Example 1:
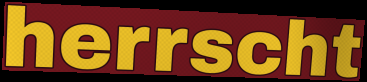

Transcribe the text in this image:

herrscht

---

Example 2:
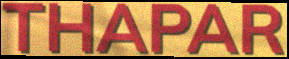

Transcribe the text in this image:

THAPAR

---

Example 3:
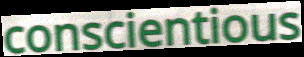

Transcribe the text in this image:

conscientious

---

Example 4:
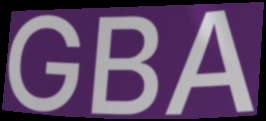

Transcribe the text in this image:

GBA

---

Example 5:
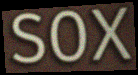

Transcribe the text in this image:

SOX